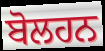
ਬੋਲਹਨ